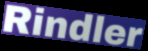
Rindler